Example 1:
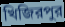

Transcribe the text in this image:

খিজিরপুর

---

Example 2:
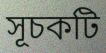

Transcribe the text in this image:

সূচকটি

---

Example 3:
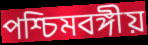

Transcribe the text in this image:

পশ্চিমবঙ্গীয়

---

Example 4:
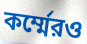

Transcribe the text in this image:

কর্ম্মেরও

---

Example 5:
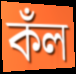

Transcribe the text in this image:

কঁল